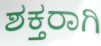
ಶಕ್ತರಾಗಿ